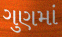
ગુણમાં